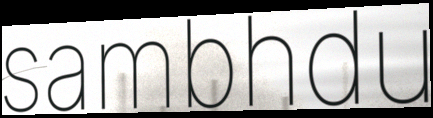
sambhdu